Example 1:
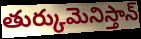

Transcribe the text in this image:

తుర్కుమెనిస్తాన్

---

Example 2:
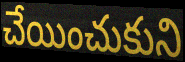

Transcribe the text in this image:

చేయించుకుని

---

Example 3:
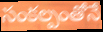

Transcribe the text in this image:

సంకల్పంతోనే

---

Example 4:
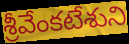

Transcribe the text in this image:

శ్రీవేంకటేశుని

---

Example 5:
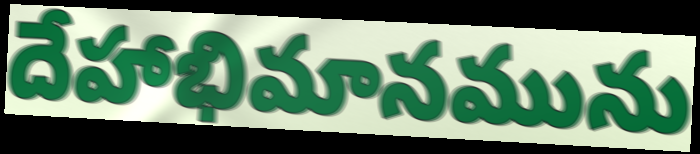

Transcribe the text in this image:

దేహాభిమానమును